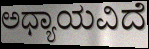
ಅಧ್ಯಾಯವಿದೆ